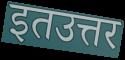
इतउत्तर